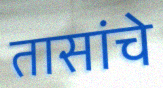
तासांचे